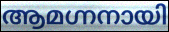
ആമഗ്നനായി